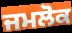
ਜਮਲੋਕ